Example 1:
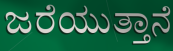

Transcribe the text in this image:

ಜರೆಯುತ್ತಾನೆ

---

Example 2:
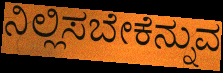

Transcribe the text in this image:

ನಿಲ್ಲಿಸಬೇಕೆನ್ನುವ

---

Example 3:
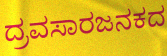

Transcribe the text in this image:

ದ್ರವಸಾರಜನಕದ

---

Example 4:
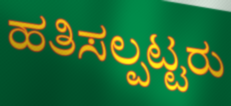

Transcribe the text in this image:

ಹತಿಸಲ್ಪಟ್ಟರು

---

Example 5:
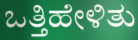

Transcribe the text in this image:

ಒತ್ತಿಹೇಳಿತು